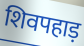
शिवपहाड़